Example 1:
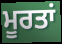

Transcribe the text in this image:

ਮੂਰਤਾਂ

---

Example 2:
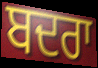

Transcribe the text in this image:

ਬਦਰਾ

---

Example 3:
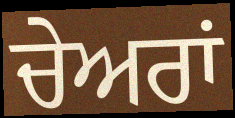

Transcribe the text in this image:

ਚੇਅਰਾਂ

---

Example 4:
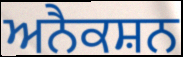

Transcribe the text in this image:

ਅਨੈਕਸ਼ਨ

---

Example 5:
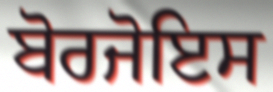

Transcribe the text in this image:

ਬੋਰਜੋਇਸ